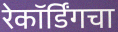
रेकॉर्डिंगचा